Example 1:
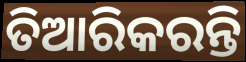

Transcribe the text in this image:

ତିଆରିକରନ୍ତି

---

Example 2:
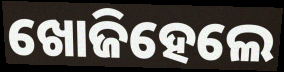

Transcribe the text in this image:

ଖୋଜିହେଲେ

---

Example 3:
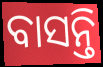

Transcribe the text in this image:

ବାସନ୍ତି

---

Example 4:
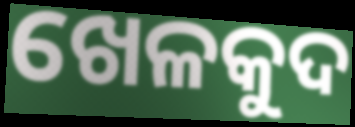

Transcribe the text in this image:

ଖେଳକୁଦ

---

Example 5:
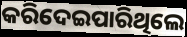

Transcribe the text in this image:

କରିଦେଇପାରିଥିଲେ